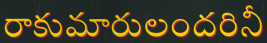
రాకుమారులందరినీ